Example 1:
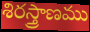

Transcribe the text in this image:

శిరస్త్రాణము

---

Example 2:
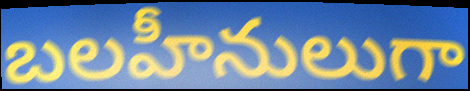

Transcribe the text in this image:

బలహీనులుగా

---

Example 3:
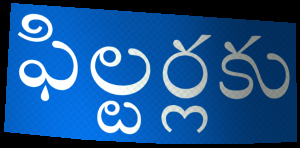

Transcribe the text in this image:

ఫిల్టర్లకు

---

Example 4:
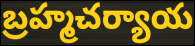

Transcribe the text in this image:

బ్రహ్మచర్యాయ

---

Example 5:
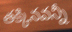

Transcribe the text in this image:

తక్కినవన్నీ